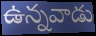
ఉన్నవాడు